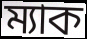
ম্যাক